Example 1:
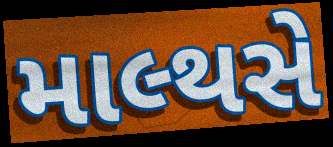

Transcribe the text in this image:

માલ્થસે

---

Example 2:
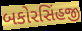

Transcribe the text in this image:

બકોરસિંહજી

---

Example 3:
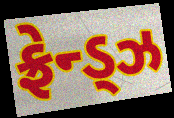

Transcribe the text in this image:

ફ્રેન્ડ્ઝ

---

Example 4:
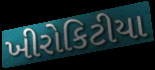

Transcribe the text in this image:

ખીરોકિટીયા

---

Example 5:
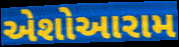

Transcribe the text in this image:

એશોઆરામ